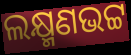
ଲକ୍ଷ୍ମଣଭଟ୍ଟ